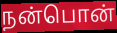
நன்பொன்